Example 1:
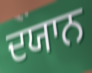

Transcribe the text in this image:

ਦਯਾਨ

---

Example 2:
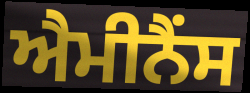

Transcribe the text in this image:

ਐਮੀਨੈਂਸ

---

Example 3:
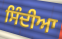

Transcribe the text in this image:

ਸਿੰਦੀਆ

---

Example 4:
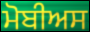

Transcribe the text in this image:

ਮੋਬੀਅਸ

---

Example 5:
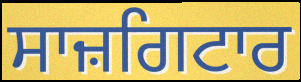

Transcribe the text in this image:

ਸਾਜ਼ਗਿਟਾਰ